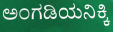
ಅಂಗಡಿಯನಿಕ್ಕಿ